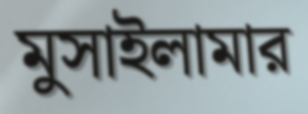
মুসাইলামার